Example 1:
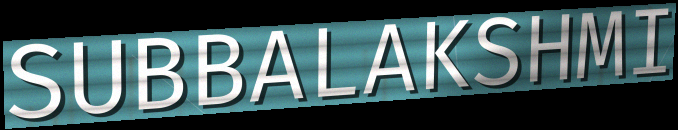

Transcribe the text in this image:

SUBBALAKSHMI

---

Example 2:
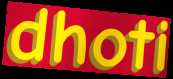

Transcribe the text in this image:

dhoti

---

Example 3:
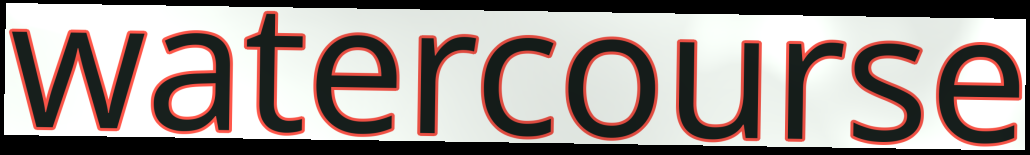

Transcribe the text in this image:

watercourse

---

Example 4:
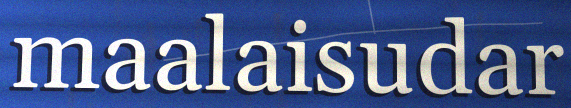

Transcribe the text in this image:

maalaisudar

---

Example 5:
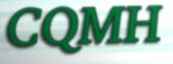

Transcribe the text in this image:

CQMH